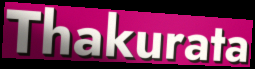
Thakurata